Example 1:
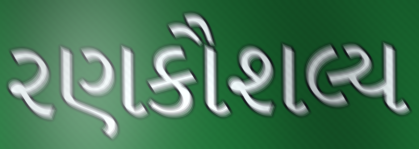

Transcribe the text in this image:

રણકૌશલ્ય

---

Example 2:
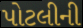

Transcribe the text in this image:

પોટલીની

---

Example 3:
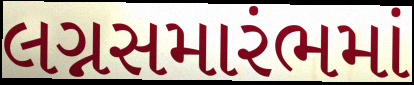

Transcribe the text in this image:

લગ્નસમારંભમાં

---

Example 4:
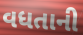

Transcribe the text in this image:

વધતાની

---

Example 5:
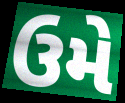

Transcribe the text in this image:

ઉમે